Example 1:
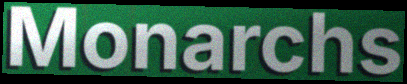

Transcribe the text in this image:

Monarchs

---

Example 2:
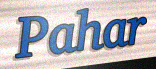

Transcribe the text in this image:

Pahar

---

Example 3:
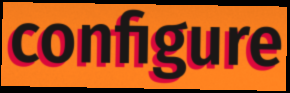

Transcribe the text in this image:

configure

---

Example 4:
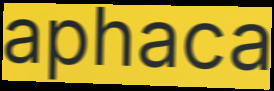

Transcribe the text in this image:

aphaca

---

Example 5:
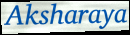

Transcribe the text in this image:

Aksharaya